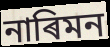
নাৰিমন